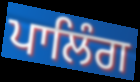
ਪਾਲਿੰਗ